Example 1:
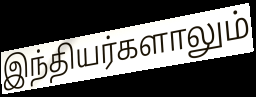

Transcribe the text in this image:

இந்தியர்களாலும்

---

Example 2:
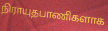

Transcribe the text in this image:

நிராயுதபாணிகளாக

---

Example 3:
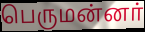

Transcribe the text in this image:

பெருமன்னர்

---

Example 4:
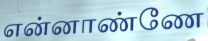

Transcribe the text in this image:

என்னாண்ணே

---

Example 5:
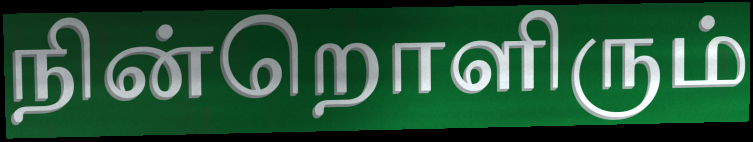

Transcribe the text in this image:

நின்றொளிரும்